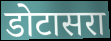
डोटासरा